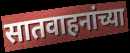
सातवाहनांच्या